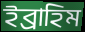
ইব্রাহিম